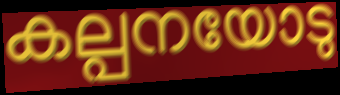
കല്പനയോടു